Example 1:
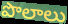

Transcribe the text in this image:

పొలాలు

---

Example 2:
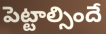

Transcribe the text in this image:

పెట్టాల్సిందే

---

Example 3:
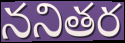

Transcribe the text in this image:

ననితర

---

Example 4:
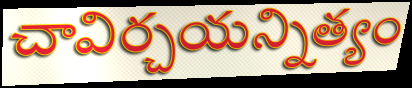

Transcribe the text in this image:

చావిర్చయన్నిత్యం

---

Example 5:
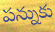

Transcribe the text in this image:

పన్నుకు